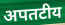
अपतटीय